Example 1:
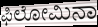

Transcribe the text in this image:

ಫಿಲೋಮಿನಾ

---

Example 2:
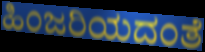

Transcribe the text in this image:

ಹಿಂಜರಿಯದಂತೆ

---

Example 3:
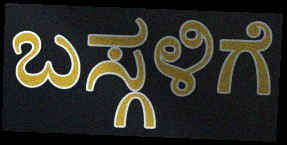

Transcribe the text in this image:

ಬಸ್ಗಳಿಗೆ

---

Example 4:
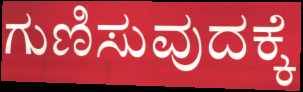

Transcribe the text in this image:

ಗುಣಿಸುವುದಕ್ಕೆ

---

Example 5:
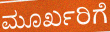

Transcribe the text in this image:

ಮೂರ್ಖರಿಗೆ